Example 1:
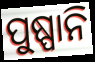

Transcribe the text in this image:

ପୁଷ୍ପାନି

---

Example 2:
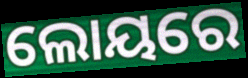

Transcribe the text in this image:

ଲୋୟରେ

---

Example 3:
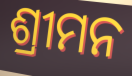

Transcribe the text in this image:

ଶ୍ରୀମନ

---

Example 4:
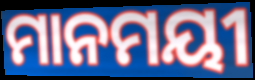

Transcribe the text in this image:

ମାନମୟୀ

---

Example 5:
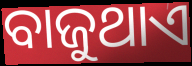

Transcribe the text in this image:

ବାଜୁଥାଏ